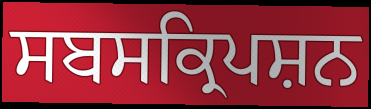
ਸਬਸਕ੍ਰਿਪਸ਼ਨ